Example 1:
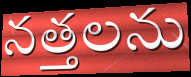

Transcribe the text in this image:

నత్తలను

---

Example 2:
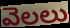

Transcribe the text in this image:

వెలలు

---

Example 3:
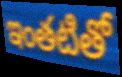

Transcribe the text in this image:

ఇంతటితో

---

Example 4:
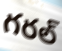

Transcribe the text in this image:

గరల్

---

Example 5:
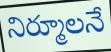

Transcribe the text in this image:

నిర్మూలనే